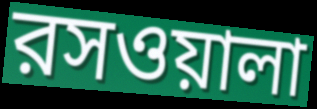
রসওয়ালা